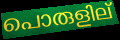
പൊരുളില്